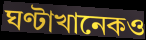
ঘণ্টাখানেকও